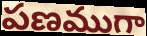
పణముగా